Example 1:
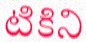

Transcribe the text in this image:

టికిని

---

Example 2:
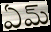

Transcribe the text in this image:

ఏమ్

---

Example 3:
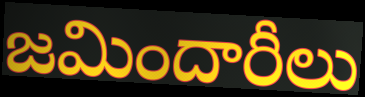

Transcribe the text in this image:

జమిందారీలు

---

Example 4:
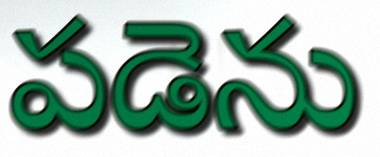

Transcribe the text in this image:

పడెను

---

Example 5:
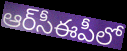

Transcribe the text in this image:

ఆర్‌సీఈపీలో